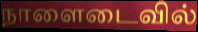
நாளைடைவில்